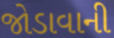
જોડાવાની